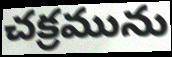
చక్రమును